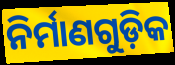
ନିର୍ମାଣଗୁଡ଼ିକ